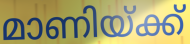
മാണിയ്ക്ക്